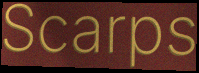
Scarps